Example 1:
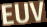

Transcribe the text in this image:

EUV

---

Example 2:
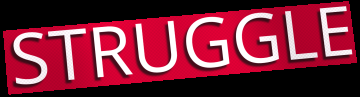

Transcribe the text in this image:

STRUGGLE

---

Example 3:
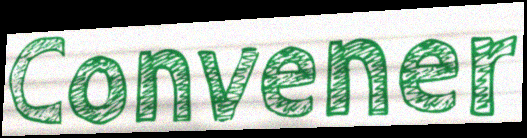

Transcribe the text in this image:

Convener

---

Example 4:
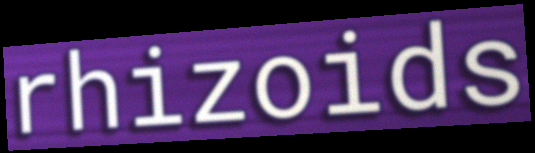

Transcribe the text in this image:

rhizoids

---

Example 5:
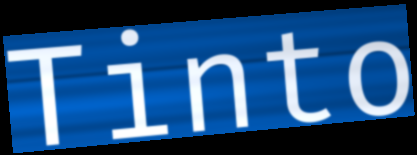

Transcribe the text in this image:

Tinto